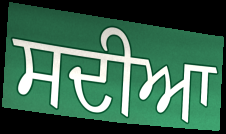
ਸਦੀਆ